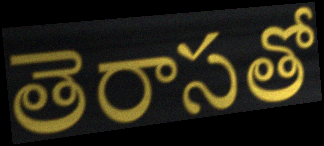
తెరాసతో